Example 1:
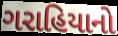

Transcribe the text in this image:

ગરાહિયાનો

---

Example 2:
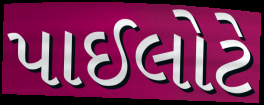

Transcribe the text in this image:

પાઈલોટે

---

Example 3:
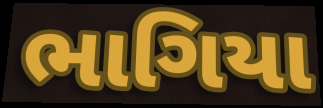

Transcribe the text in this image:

ભાગિયા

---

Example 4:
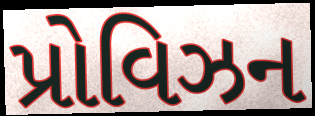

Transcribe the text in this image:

પ્રોવિઝન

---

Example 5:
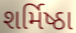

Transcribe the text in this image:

શર્મિષ્ઠા